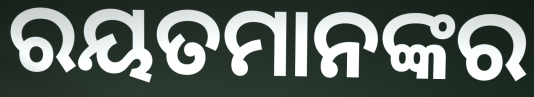
ରୟତମାନଙ୍କର